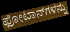
ಫೋಟಾನ್‌ಗಳನ್ನು